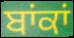
ਬਾਂਕਾਂ